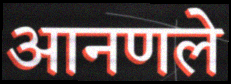
आनणले